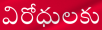
విరోధులకు